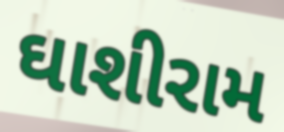
ઘાશીરામ